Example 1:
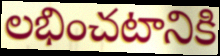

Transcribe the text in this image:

లభించటానికి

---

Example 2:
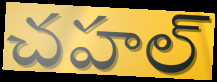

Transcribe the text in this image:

చహల్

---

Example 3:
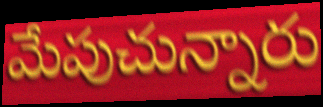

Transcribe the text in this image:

మేపుచున్నారు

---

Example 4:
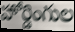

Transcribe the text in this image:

హోర్డింగుల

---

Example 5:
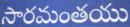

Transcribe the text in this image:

సారమంతయు